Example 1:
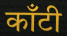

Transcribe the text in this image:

काँटी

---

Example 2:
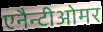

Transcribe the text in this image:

एनैन्टीओमर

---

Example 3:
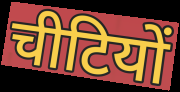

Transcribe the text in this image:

चीटियों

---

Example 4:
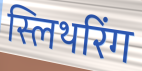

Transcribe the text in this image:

स्लिथरिंग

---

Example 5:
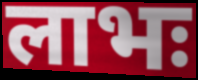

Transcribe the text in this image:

लाभः